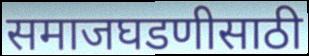
समाजघडणीसाठी